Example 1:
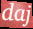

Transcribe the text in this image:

daj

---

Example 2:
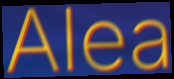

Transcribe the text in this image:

Alea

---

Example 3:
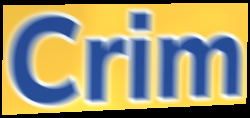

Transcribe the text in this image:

Crim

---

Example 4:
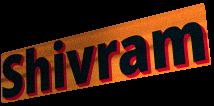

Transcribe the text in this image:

Shivram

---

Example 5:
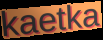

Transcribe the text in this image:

kaetka